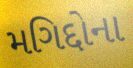
મગિદ્દોના